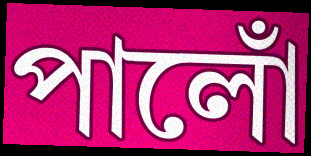
পালোঁ